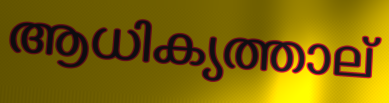
ആധിക്യത്താല്